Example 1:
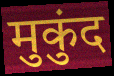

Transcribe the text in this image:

मुकुंद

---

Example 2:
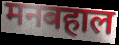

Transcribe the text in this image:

मनबहाल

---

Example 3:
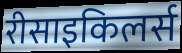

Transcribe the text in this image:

रीसाइकिलर्स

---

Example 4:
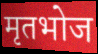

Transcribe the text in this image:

मृतभोज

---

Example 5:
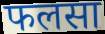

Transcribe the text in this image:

फलसा